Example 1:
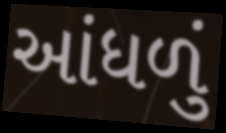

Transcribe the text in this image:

આંધળું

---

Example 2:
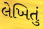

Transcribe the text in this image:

લેખિતું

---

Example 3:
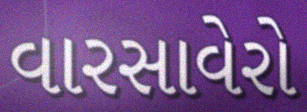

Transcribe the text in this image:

વારસાવેરો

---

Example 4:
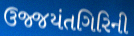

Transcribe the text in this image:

ઉજ્જયંતગિરિની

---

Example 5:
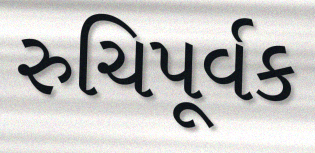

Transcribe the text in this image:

રુચિપૂર્વક